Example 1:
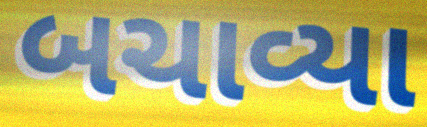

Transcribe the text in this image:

બચાવ્યા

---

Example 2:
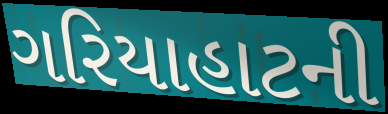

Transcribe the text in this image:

ગરિયાહાટની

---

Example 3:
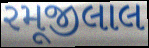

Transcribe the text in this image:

રમૂજીલાલ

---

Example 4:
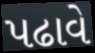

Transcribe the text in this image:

પઢાવે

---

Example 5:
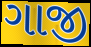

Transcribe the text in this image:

ગાજી